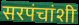
सरपंचांशी